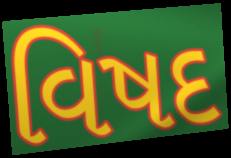
વિષદ